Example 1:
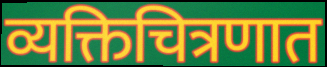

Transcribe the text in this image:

व्यक्तिचित्रणात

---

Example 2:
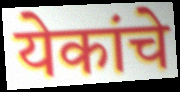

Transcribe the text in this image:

येकांचे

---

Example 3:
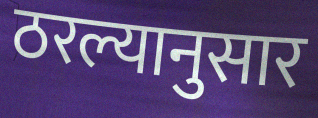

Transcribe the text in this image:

ठरल्यानुसार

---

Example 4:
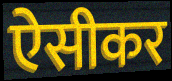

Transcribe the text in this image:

ऐसीकर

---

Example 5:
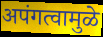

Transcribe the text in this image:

अपंगत्वामुळे